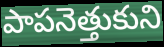
పాపనెత్తుకుని